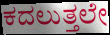
ಕದಲುತ್ತಲೇ